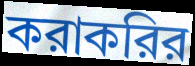
করাকরির